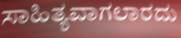
ಸಾಹಿತ್ಯವಾಗಲಾರದು